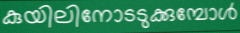
കുയിലിനോടടുക്കുമ്പോൾ